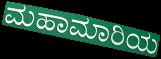
ಮಹಾಮಾರಿಯ